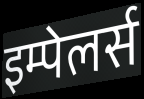
इम्पेलर्स